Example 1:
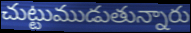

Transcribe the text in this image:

చుట్టుముడుతున్నారు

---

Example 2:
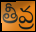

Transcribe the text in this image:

తీవ్ర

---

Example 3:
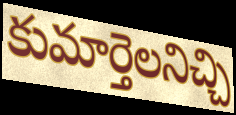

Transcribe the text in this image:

కుమార్తెలనిచ్చి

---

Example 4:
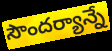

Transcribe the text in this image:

సౌందర్యాన్నే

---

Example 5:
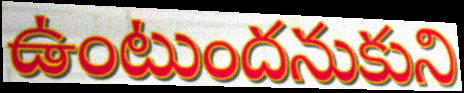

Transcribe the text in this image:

ఉంటుందనుకుని